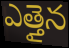
ఎత్తైన